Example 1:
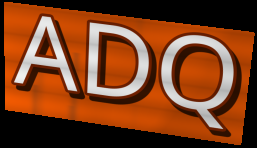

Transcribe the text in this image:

ADQ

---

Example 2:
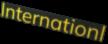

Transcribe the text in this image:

Internationl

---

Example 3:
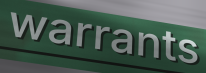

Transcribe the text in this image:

warrants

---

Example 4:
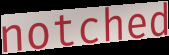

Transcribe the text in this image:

notched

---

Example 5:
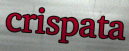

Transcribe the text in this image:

crispata